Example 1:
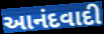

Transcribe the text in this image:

આનંદવાદી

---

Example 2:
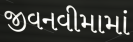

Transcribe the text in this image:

જીવનવીમામાં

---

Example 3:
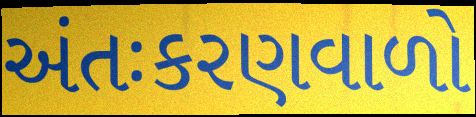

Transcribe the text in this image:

અંતઃકરણવાળો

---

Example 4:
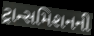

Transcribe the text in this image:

ટ્રાન્સમિશનની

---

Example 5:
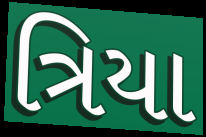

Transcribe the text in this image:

ત્રિયા